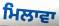
ਮਿਲਾਵਾ